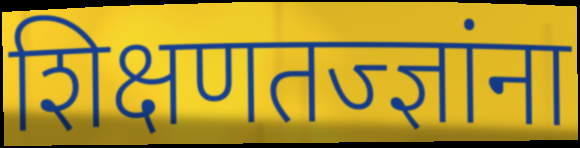
शिक्षणतज्ज्ञांना